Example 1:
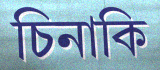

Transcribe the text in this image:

চিনাকি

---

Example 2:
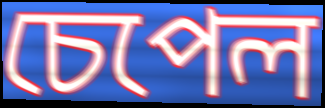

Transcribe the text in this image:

চেপেল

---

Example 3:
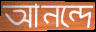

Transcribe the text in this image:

আনন্দে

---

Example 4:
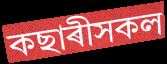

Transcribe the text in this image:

কছাৰীসকল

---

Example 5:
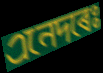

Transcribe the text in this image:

এনেদৰেঃ